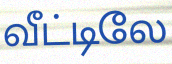
வீட்டிலே